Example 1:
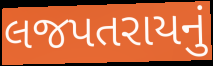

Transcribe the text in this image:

લજપતરાયનું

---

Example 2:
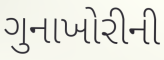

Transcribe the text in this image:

ગુનાખોરીની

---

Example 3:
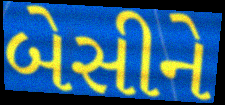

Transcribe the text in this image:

બેસીને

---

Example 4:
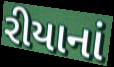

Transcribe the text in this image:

રીયાનાં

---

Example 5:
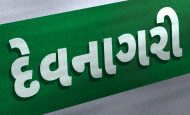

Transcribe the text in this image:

દેવનાગરી